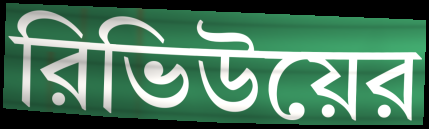
রিভিউয়ের